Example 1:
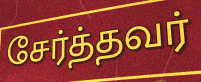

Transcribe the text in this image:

சேர்த்தவர்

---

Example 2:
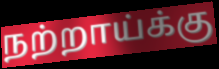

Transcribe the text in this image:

நற்றாய்க்கு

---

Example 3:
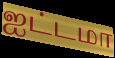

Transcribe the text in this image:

ஐட்டமா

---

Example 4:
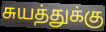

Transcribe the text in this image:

சுயத்துக்கு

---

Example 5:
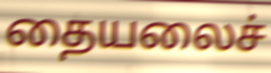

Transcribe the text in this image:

தையலைச்